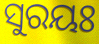
ସୁରୟଃ